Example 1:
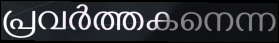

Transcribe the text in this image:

പ്രവർത്തകനെന്ന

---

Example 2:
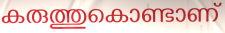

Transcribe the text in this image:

കരുത്തുകൊണ്ടാണ്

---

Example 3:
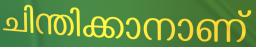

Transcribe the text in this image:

ചിന്തിക്കാനാണ്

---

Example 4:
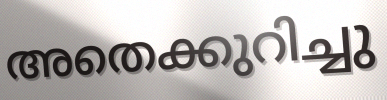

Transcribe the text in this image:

അതെക്കുറിച്ചു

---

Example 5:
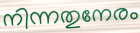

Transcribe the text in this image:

നിന്നതുനേരം